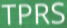
TPRS